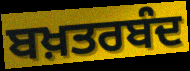
ਬਖ਼ਤਰਬੰਦ